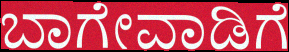
ಬಾಗೇವಾಡಿಗೆ